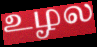
உழல